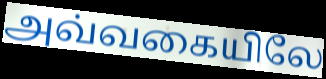
அவ்வகையிலே